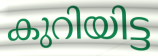
കുറിയിട്ട